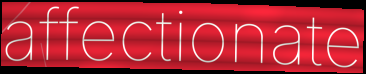
affectionate